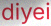
diyei